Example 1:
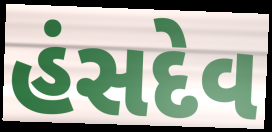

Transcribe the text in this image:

હંસદેવ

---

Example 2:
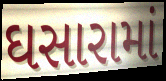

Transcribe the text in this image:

ઘસારામાં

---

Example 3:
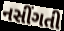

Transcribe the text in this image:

નસીંગતી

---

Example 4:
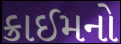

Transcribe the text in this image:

ક્રાઈમનો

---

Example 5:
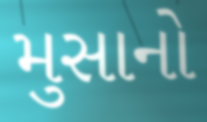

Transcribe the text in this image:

મુસાનો